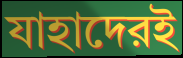
যাহাদেরই